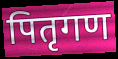
पितृगण